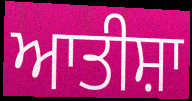
ਆਤੀਸ਼ਾ